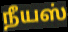
நீயஸ்